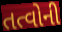
તત્વોની